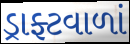
ડ્રાફ્ટવાળાં